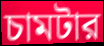
চামটার